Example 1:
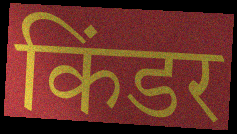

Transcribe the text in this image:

किंडर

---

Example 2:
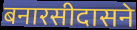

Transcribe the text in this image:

बनारसीदासने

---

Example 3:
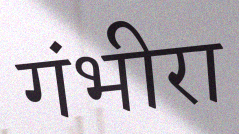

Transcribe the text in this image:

गंभीरा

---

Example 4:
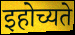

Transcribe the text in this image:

इहोच्यते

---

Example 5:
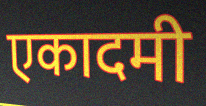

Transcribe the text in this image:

एकादमी